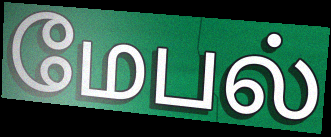
மேபல்